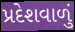
પ્રદેશવાળું